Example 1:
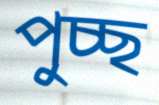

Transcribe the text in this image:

পুচ্ছ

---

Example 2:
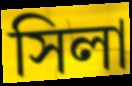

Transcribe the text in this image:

সিলা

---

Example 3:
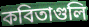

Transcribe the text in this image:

কবিতাগুলি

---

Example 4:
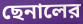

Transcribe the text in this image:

ছেনালের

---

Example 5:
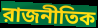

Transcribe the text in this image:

রাজনীতিক